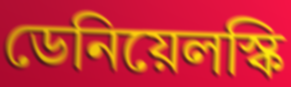
ডেনিয়েলস্কি